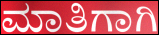
ಮಾತಿಗಾಗಿ